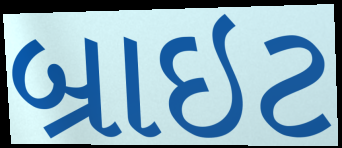
બ્રાઇટ